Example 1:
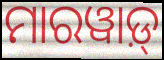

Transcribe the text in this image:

ମାରୱାଡ଼୍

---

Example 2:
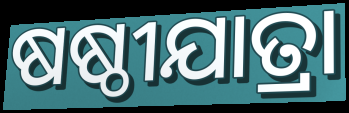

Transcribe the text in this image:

ଷଷ୍ଠୀଯାତ୍ରା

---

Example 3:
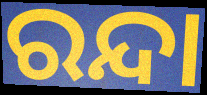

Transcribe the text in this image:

ରନ୍ଦା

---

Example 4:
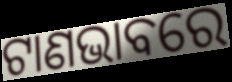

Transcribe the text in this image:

ଟାଣଭାବରେ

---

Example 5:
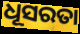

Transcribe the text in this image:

ଧୂସରତା